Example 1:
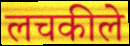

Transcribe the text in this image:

लचकीले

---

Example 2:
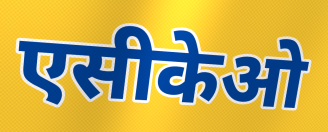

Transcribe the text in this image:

एसीकेओ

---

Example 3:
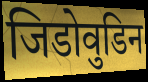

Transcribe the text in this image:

जिडोवुडिन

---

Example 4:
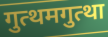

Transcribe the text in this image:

गुत्थमगुत्था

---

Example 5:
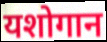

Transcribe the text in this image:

यशोगान